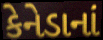
કેનેડાનાં